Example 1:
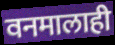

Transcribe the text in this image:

वनमालाही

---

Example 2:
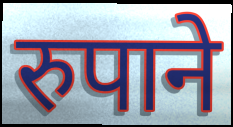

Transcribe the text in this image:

रुपाने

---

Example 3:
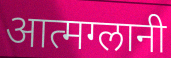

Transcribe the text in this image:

आत्मग्लानी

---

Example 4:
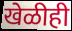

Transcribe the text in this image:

खेळीही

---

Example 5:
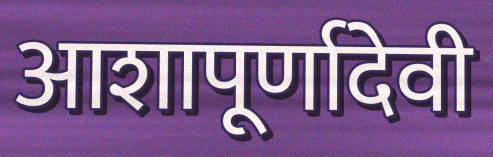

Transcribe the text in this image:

आशापूर्णादेवी